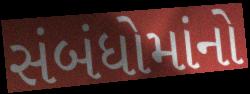
સંબંધોમાંનો